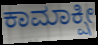
ಕಾಮಾಕ್ಷೀ